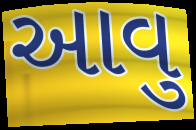
આવુ